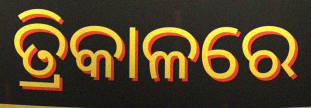
ତ୍ରିକାଳରେ